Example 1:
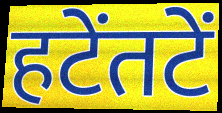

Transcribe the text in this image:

हटेंतटें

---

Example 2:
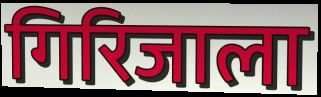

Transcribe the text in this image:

गिरिजाला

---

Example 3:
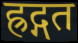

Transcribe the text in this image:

ह्रद्गत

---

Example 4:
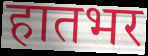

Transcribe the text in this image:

हातभर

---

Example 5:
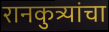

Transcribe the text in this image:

रानकुत्र्यांचा